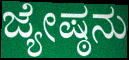
ಜ್ಯೇಷ್ಠನು